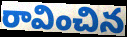
రావించిన